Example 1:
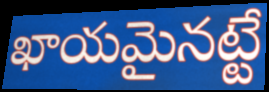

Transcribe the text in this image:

ఖాయమైనట్టే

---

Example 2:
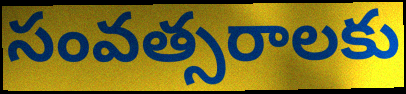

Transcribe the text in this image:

సంవత్సరాలకు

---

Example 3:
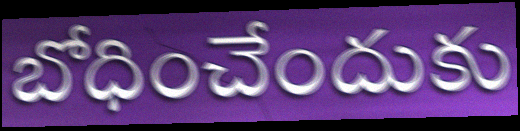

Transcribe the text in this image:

బోధించేందుకు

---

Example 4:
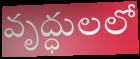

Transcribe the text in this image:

వృద్ధులలో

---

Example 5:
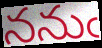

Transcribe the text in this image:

ననుఁ